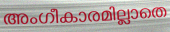
അംഗീകാരമില്ലാതെ